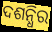
ଦଶନ୍ଧିର